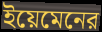
ইয়েমেনের